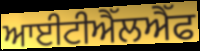
ਆਈਟੀਐੱਲਐੱਫ